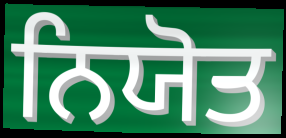
ਨਿਯੋਤ